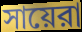
সায়েরা